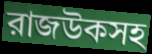
রাজউকসহ